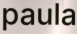
paula